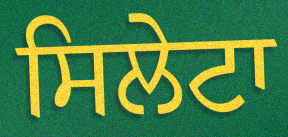
ਸਿਲੇਟਾ